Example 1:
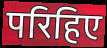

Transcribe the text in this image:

परिहिए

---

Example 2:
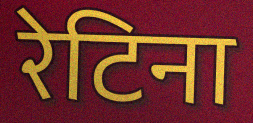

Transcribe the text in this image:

रेटिना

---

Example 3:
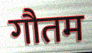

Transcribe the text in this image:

गौतम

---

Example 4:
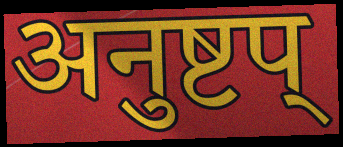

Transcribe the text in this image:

अनुष्टप्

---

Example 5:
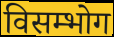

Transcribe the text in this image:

विसम्भोग